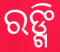
ରଙ୍ଗି